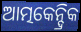
ଆତ୍ମକେନ୍ଦ୍ରିକ